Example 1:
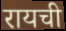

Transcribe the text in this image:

रायची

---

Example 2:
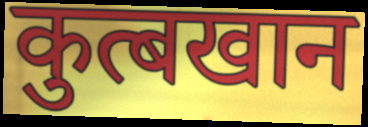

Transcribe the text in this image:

कुत्बखान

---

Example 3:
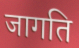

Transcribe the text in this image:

जागति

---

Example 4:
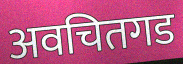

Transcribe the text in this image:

अवचितगड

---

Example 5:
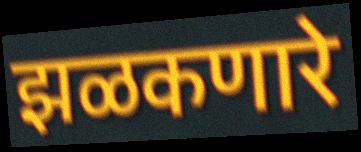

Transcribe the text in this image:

झळकणारे